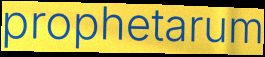
prophetarum